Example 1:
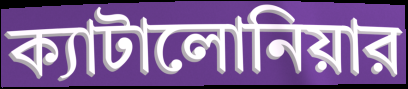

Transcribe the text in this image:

ক্যাটালোনিয়ার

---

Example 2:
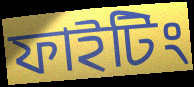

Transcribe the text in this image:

ফাইটিং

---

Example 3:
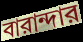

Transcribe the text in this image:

বারান্দার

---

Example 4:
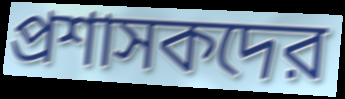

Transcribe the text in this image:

প্রশাসকদের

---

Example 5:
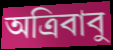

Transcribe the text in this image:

অত্রিবাবু